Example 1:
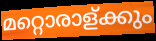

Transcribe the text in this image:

മറ്റൊരാള്ക്കും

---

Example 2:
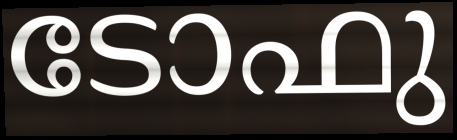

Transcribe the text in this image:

ടോഫു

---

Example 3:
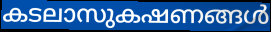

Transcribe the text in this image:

കടലാസുകഷണങ്ങൾ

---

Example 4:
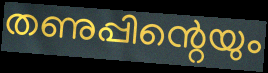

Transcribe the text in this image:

തണുപ്പിന്റെയും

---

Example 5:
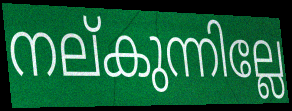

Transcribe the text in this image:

നല്കുന്നില്ലേ